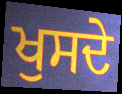
ਖੁਸਦੇ